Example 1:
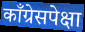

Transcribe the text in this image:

काँग्रेसपेक्षा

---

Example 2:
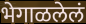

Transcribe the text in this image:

भेगाळलेलं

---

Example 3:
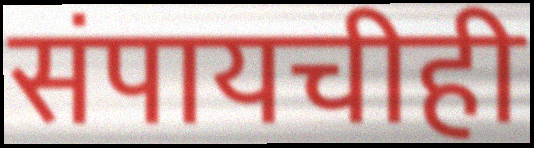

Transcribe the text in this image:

संपायचीही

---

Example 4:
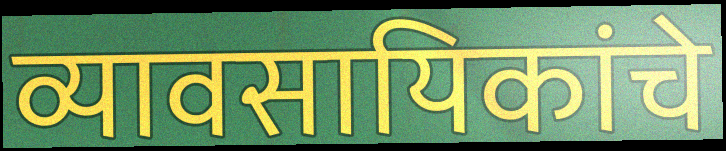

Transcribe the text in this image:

व्यावसायिकांचे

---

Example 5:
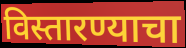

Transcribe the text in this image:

विस्तारण्याचा